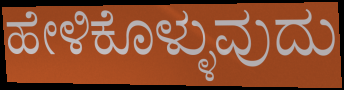
ಹೇಳಿಕೊಳ್ಳುವುದು